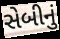
સેબીનું